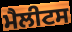
ਮੈਲੀਟਸ